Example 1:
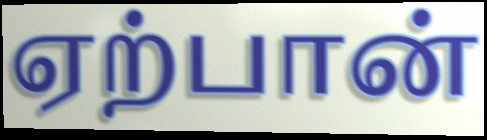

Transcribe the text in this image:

ஏற்பான்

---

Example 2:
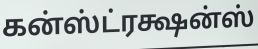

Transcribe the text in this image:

கன்ஸ்ட்ரக்ஷன்ஸ்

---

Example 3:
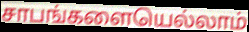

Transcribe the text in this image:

சாபங்களையெல்லாம்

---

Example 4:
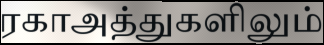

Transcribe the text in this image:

ரகாஅத்துகளிலும்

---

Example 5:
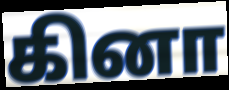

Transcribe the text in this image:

கினா